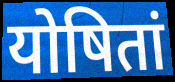
योषितां